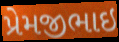
પ્રેમજીભાઇ